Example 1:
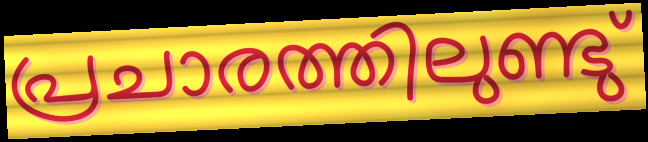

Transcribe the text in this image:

പ്രചാരത്തിലുണ്ടു്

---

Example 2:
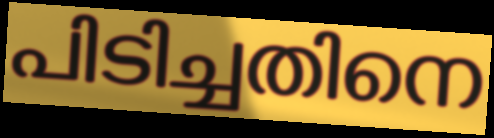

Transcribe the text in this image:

പിടിച്ചതിനെ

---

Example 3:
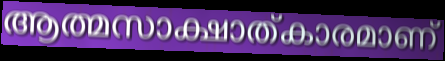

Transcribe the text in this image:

ആത്മസാക്ഷാത്കാരമാണ്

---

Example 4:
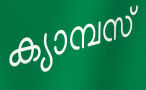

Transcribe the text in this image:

ക്യാമ്പസ്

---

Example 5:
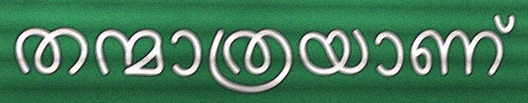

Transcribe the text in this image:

തന്മാത്രയാണ്